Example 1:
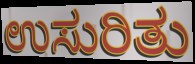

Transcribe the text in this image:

ಉಸುರಿತು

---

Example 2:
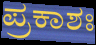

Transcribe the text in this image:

ಪ್ರಕಾಶಃ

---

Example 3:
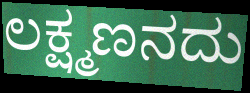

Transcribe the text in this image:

ಲಕ್ಷ್ಮಣನದು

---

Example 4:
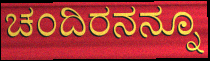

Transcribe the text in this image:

ಚಂದಿರನನ್ನೂ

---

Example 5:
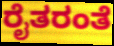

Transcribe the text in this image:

ರೈತರಂತೆ